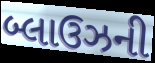
બ્લાઉઝની